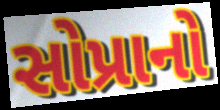
સોપ્રાનો